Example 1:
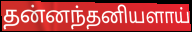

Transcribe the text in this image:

தன்னந்தனியளாய்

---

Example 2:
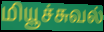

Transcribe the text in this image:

மியூச்சுவல்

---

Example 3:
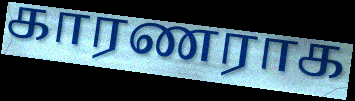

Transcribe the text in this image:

காரணராக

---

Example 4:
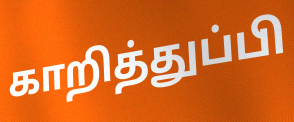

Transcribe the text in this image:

காறித்துப்பி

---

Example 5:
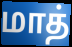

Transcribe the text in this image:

மாத்